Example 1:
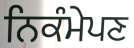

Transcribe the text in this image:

ਨਿਕੰਮੇਪਣ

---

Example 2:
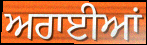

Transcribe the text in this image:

ਅਰਾਈਆਂ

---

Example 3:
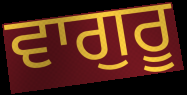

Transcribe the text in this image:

ਵਾਗੁਰੂ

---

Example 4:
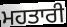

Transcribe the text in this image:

ਮਹਤਾਰੀ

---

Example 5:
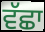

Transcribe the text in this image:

ਵੱਛਾ